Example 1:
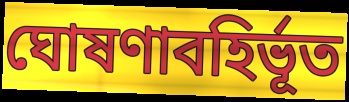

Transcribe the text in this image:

ঘোষণাবহির্ভূত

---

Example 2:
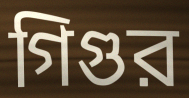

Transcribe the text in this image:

গিগুর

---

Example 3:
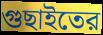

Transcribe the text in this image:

গুছাইতের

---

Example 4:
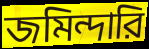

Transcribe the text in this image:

জমিন্দারি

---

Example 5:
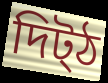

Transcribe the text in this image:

দিট্ঠ